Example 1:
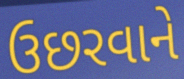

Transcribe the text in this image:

ઉછરવાને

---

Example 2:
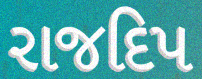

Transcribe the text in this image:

રાજદિપ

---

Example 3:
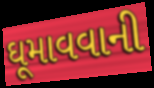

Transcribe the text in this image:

ઘૂમાવવાની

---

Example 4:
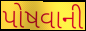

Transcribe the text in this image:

પોષવાની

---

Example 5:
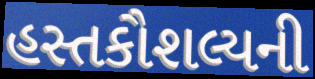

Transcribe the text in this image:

હસ્તકૌશલ્યની